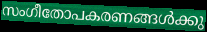
സംഗീതോപകരണങ്ങൾക്കു